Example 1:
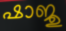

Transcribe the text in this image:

ഷാജു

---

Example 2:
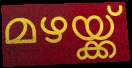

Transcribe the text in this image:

മഴയ്ക്ക്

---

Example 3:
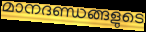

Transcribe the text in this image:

മാനദണ്ഡങ്ങളുടെ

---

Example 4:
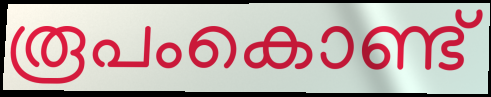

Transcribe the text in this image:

രൂപംകൊണ്ട്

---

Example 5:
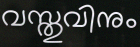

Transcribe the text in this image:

വസ്തുവിനും